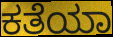
ಕತೆಯಾ